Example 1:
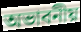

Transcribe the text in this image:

অভাবনীয়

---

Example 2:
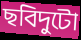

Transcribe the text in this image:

ছবিদুটো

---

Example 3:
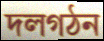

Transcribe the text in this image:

দলগঠন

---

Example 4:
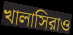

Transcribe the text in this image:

খালাসিরাও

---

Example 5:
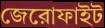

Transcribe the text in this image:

জেরোফাইট